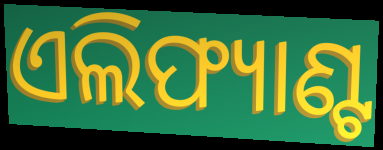
ଏଲିଫ୍ୟାଣ୍ଟ